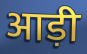
आड़ी